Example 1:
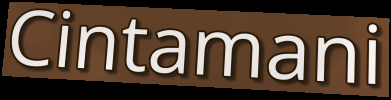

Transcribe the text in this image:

Cintamani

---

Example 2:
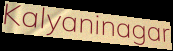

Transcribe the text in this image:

Kalyaninagar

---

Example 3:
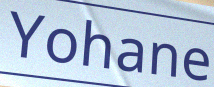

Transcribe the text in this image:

Yohane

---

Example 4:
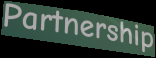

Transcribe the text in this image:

Partnership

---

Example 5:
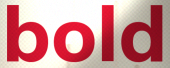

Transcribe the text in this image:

bold